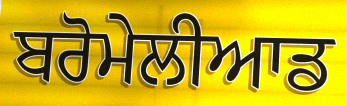
ਬਰੋਮੇਲੀਆਡ